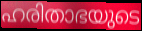
ഹരിതാഭയുടെ